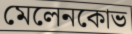
মেলেনকোভ